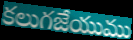
కలుగజేయుము